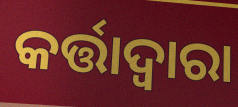
କର୍ତ୍ତାଦ୍ଵାରା